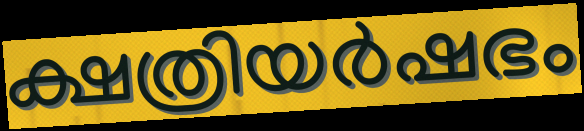
ക്ഷത്രിയർഷഭം